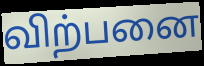
விற்பனை